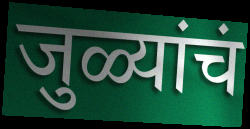
जुळ्यांचं